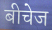
बीचेज